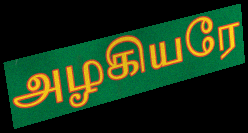
அழகியரே